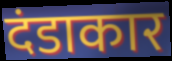
दंडाकार